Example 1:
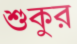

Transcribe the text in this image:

শুকুর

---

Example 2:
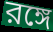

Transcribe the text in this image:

রঙ্গে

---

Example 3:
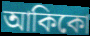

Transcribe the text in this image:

আকিকো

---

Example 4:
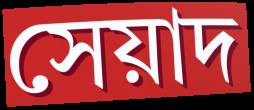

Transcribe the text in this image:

সেয়াদ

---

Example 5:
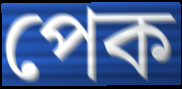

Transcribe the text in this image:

পেক